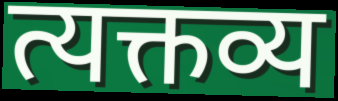
त्यक्तव्य